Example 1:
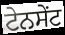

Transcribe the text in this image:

ਟੇਨਸੇਂਟ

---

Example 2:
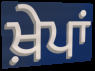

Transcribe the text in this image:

ਖ਼ੇਪਾਂ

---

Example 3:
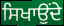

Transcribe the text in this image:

ਸਿਖਾਉਂਦੇ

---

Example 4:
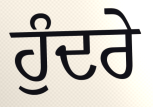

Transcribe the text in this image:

ਹੁੰਦਰੇ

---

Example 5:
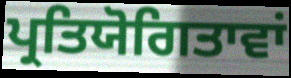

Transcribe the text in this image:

ਪ੍ਰਤਿਯੋਗਿਤਾਵਾਂ